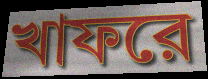
খাফরে